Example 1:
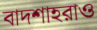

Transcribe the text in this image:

বাদশাহরাও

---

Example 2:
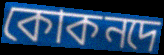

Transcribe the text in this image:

কোকনদে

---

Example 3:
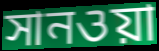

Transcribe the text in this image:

সানওয়া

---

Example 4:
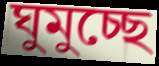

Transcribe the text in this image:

ঘুমুচ্ছে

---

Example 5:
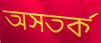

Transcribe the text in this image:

অসতর্ক